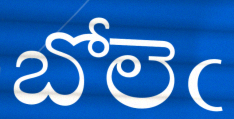
బోలెఁ